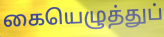
கையெழுத்துப்